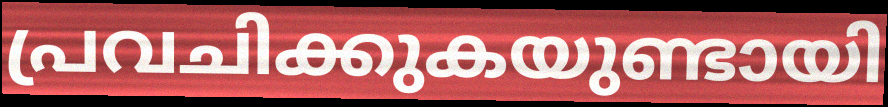
പ്രവചിക്കുകയുണ്ടായി